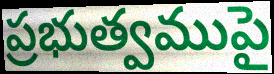
ప్రభుత్వముపై